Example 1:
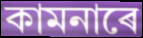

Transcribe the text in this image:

কামনাৰে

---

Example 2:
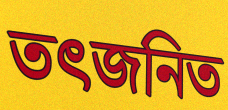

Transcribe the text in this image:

তৎজনিত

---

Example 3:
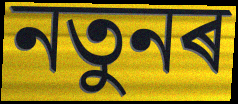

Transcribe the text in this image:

নতুনৰ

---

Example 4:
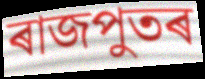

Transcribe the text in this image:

ৰাজপুতৰ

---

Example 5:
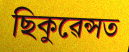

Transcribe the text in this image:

ছিকুৱেন্সত